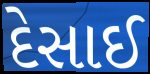
દેસાઈ